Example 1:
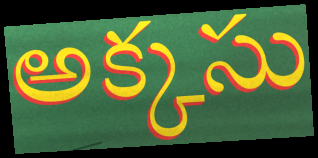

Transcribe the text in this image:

అక్కసు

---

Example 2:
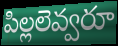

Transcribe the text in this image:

పిల్లలెవ్వరూ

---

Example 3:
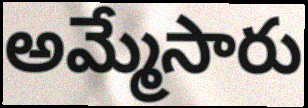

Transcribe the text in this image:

అమ్మేసారు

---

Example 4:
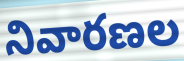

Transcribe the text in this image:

నివారణల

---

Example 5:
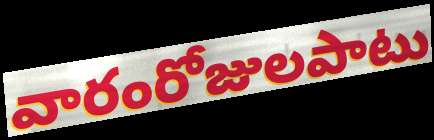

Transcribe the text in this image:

వారంరోజులపాటు